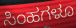
ಸಿಂಹಗಳೂ